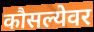
कौसल्येवर